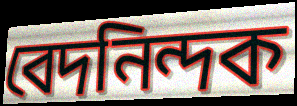
বেদনিন্দক